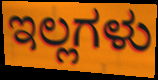
ಇಲ್ಲಗಳು